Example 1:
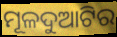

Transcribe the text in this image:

ମୂଳଦୁଆଟିର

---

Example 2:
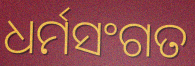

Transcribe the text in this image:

ଧର୍ମସଂଗତ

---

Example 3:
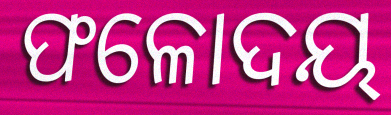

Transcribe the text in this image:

ଫଳୋଦୟ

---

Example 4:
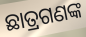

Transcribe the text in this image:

ଛାତ୍ରଗଣଙ୍କ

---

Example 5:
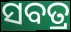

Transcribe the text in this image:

ସବତ୍ର